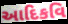
આદિકવિ